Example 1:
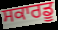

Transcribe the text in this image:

ਸਕਾਰਡੂ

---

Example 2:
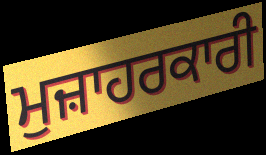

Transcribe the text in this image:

ਮੁਜ਼ਾਹਰਕਾਰੀ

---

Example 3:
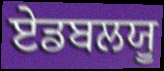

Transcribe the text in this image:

ਏਡਬਲਯੂ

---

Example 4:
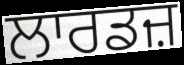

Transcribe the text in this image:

ਲਾਰਡਜ਼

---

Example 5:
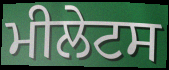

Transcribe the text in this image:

ਮੀਲੇਟਸ